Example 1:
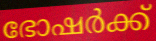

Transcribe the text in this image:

ഭോഷർക്ക്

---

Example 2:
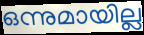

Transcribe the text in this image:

ഒന്നുമായില്ല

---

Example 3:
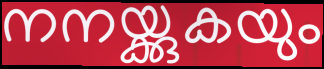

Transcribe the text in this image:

നനയ്ക്കുകയും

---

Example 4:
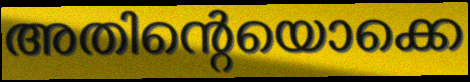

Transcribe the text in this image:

അതിന്റെയൊക്കെ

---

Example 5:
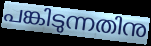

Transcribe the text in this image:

പങ്കിടുന്നതിനു